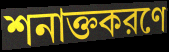
শনাক্তকরণে